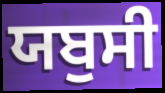
ਯਬੁਸੀ